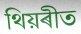
থিয়ৰীত